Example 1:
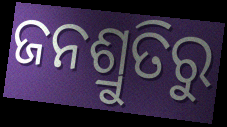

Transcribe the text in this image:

ଜନଶ୍ରୁତିରୁ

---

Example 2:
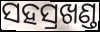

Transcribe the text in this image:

ସହସ୍ରଖଣ୍ଡ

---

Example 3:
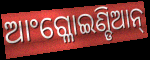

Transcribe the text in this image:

ଆଂଗ୍ଳୋଇଣ୍ଡିଆନ୍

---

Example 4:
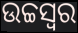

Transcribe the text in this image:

ଉଚ୍ଚସ୍ବର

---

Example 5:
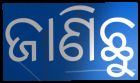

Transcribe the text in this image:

ଜାଣିଛୁ